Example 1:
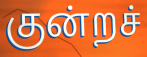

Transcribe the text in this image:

குன்றச்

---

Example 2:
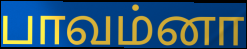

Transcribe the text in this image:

பாவம்னா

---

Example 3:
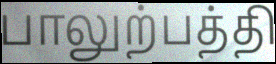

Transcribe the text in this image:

பாலுற்பத்தி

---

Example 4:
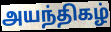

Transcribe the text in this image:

அயந்திகழ்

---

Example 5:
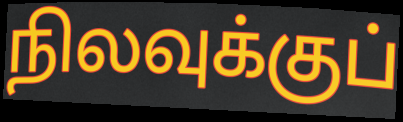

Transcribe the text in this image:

நிலவுக்குப்